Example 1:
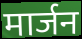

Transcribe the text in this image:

मार्जन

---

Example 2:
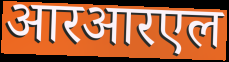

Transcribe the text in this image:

आरआरएल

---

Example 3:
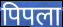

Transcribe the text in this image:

पिपला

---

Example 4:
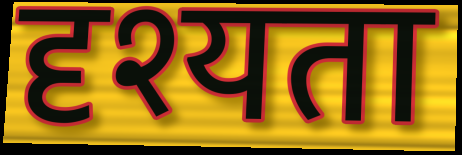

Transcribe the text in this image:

दृश्यता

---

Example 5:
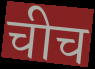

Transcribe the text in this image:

चीच